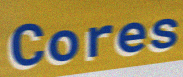
Cores